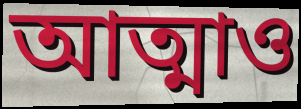
আত্মাও